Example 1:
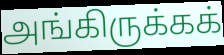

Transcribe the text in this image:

அங்கிருக்கக்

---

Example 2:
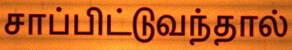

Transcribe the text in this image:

சாப்பிட்டுவந்தால்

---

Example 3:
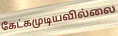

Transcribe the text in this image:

கேட்கமுடியவில்லை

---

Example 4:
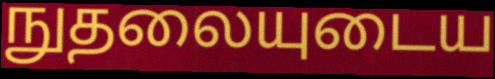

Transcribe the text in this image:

நுதலையுடைய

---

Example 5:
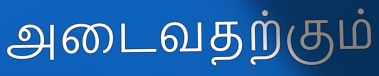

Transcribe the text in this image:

அடைவதற்கும்